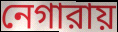
নেগারায়